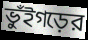
ভুঁইগড়ের